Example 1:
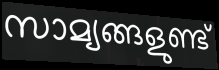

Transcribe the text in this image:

സാമ്യങ്ങളുണ്ട്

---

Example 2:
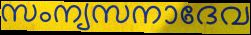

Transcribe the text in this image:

സംന്യസനാദേവ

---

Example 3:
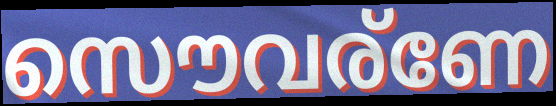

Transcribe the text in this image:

സൌവര്ണേ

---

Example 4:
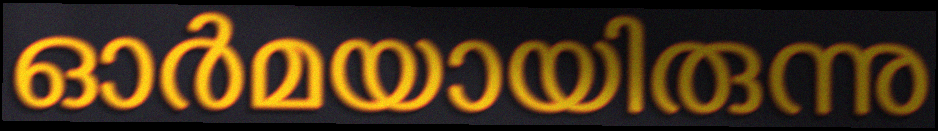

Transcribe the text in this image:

ഓർമയായിരുന്നു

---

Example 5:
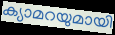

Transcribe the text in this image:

ക്യാമറയുമായി